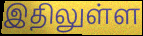
இதிலுள்ள